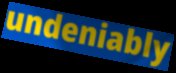
undeniably